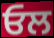
ਓਲ